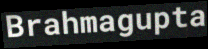
Brahmagupta